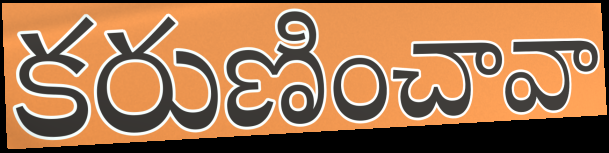
కరుణించావా